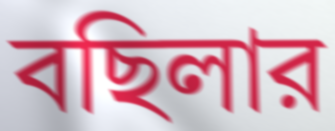
বছিলার